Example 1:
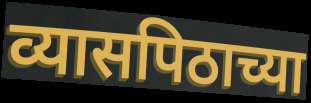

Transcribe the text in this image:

व्यासपिठाच्या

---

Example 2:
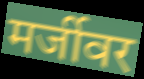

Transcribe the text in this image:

मर्जीवर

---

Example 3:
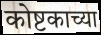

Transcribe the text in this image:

कोष्टकाच्या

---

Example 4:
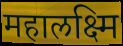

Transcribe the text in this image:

महालक्ष्मि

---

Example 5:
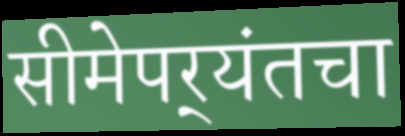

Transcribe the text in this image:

सीमेपर्यंतचा